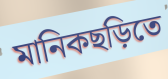
মানিকছড়িতে